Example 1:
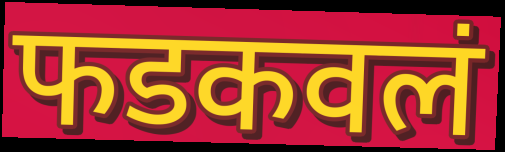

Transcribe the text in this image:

फडकवलं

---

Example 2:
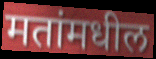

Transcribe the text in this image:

मतांमधील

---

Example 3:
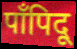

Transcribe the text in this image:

पाँपिदू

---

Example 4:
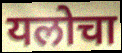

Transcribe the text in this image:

यलोचा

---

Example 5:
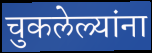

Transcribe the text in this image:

चुकलेल्यांना